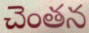
చెంతన